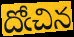
దోఁచిన